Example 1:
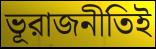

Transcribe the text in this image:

ভূরাজনীতিই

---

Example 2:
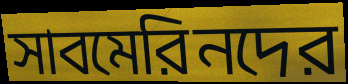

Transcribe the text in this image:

সাবমেরিনদের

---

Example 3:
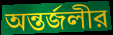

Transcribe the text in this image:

অন্তর্জলীর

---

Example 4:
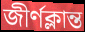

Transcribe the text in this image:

জীর্ণক্লান্ত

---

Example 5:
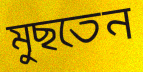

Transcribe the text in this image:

মুছতেন